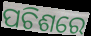
ପଚିଶରେ